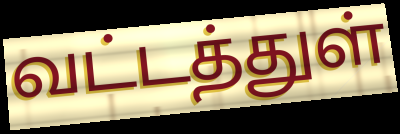
வட்டத்துள்